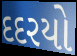
દદરયો